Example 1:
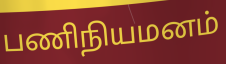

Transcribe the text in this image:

பணிநியமனம்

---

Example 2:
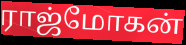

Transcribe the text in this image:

ராஜ்மோகன்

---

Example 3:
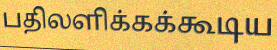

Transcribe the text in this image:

பதிலளிக்கக்கூடிய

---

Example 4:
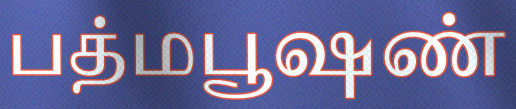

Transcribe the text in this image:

பத்மபூஷண்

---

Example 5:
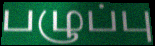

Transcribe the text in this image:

பழுப்பு